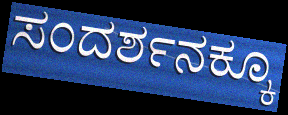
ಸಂದರ್ಶನಕ್ಕೂ